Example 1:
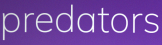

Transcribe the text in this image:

predators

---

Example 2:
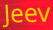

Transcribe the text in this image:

Jeev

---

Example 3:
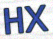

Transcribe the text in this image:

HX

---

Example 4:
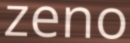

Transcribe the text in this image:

zeno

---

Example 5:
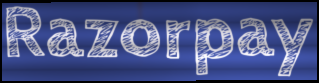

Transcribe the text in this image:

Razorpay